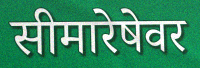
सीमारेषेवर